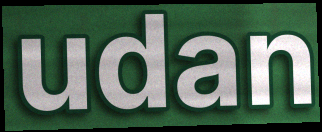
udan